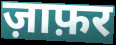
ज़ाफ़र